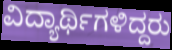
ವಿದ್ಯಾರ್ಥಿಗಳಿದ್ದರು